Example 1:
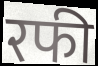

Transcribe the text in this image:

रफी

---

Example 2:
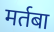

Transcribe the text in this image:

मर्तबा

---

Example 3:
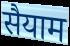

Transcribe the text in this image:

सैयाम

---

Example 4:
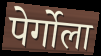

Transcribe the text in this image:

पेर्गोला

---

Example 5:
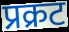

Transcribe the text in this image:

प्रक्रट